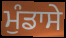
ਮੁੰਡਾਸੇ